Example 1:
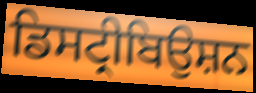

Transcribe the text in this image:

ਡਿਸਟ੍ਰੀਬਿਉਸ਼ਨ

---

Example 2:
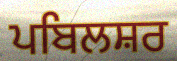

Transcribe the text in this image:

ਪਬਿਲਸ਼ਰ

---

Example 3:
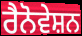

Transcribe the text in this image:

ਰੈਨੋਵੇਸ਼ਨ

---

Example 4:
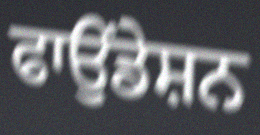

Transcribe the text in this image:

ਫਾਉਂਡੇਸ਼ਨ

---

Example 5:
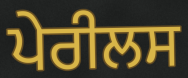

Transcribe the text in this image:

ਪੇਰੀਲਸ